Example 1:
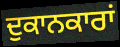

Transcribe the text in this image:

ਦੁਕਾਨਕਾਰਾਂ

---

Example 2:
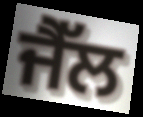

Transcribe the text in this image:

ਜੈੱਲ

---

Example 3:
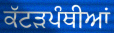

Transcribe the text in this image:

ਕੱਟੜਪੰਥੀਆਂ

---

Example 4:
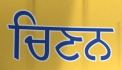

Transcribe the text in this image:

ਚਿਣਨ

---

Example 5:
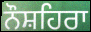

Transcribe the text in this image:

ਨੌਸ਼ਹਿਰਾ